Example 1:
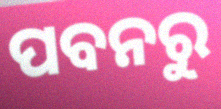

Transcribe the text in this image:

ପବନରୁ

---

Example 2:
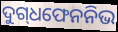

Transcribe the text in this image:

ଦୁଗ୍‍ଧଫେନନିଭ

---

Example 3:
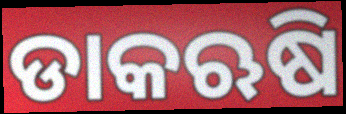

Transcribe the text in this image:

ଡାକଋଷି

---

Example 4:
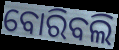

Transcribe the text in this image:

ବୋରିବଲି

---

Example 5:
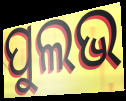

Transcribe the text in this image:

ପୁଲଭ